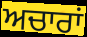
ਅਚਾਰਾਂ